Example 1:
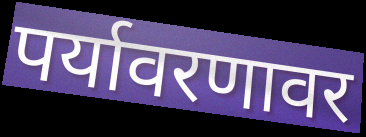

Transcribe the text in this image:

पर्यावरणावर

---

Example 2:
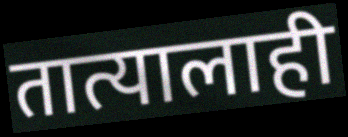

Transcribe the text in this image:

तात्यालाही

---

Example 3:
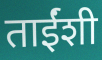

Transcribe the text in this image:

ताईंशी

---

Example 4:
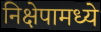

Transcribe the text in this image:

निक्षेपामध्ये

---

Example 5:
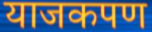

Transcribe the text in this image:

याजकपण